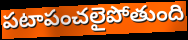
పటాపంచలైపోతుంది